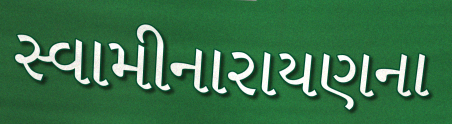
સ્વામીનારાયણના